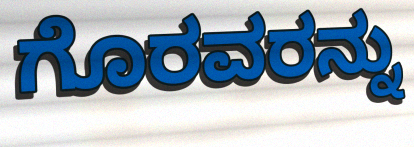
ಗೊರವರನ್ನು